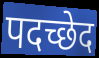
पदच्छेद